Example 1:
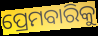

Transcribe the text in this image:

ପ୍ରେମବାରିକୁ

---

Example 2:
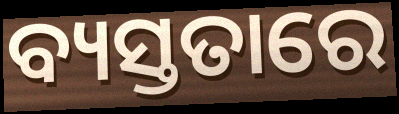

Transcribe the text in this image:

ବ୍ୟସ୍ତତାରେ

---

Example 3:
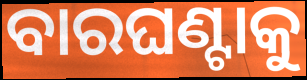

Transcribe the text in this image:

ବାରଘଣ୍ଟାକୁ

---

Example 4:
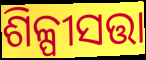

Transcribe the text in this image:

ଶିଳ୍ପୀସତ୍ତା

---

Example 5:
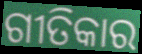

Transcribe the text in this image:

ଗୀତିକାର